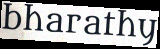
bharathy